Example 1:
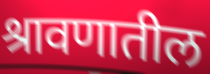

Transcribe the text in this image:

श्रावणातील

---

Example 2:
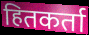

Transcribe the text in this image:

हितकर्ता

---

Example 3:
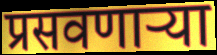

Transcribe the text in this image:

प्रसवणाऱ्या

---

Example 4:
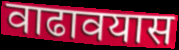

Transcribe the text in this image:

वाढावयास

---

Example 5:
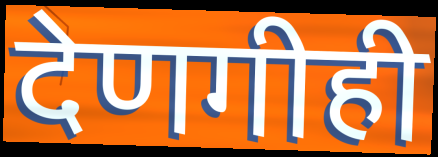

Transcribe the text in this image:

देणगीही